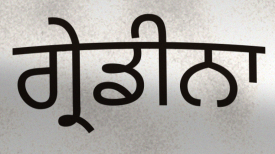
ਗ੍ਰੇਡੀਨਾ